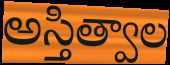
అస్తిత్వాల